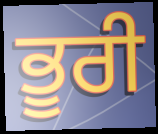
ਭੂਰੀ